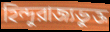
হিন্দুরাজ্যভুক্ত